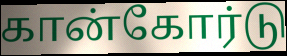
கான்கோர்டு